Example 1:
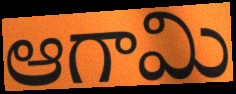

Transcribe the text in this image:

ఆగామి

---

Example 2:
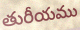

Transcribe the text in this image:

తురీయము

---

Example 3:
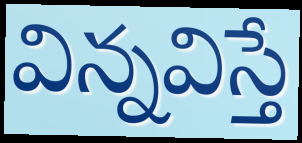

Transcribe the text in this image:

విన్నవిస్తే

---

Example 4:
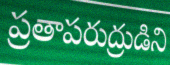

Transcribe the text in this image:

ప్రతాపరుద్రుడిని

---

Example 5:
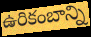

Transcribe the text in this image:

ఉరికంబాన్ని